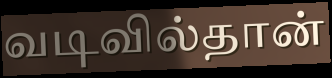
வடிவில்தான்